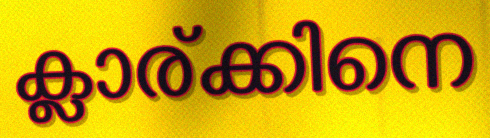
ക്ലാര്ക്കിനെ